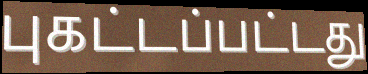
புகட்டப்பட்டது